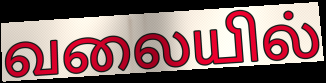
வலையில்